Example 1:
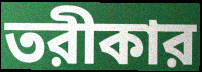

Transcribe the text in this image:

তরীকার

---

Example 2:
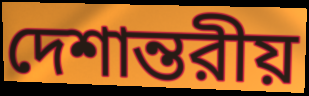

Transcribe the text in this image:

দেশান্তরীয়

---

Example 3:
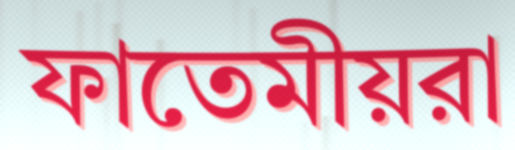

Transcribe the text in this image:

ফাতেমীয়রা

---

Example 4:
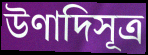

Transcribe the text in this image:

উণাদিসূত্র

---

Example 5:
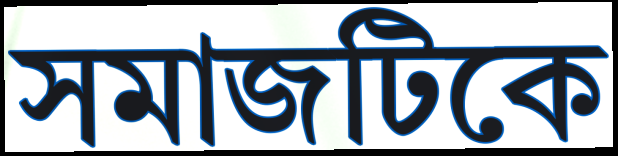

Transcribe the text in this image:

সমাজটিকে